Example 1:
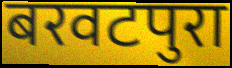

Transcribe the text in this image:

बरवटपुरा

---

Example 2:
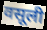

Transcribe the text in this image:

वसूली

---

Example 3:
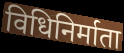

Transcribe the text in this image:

विधिनिर्माता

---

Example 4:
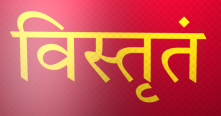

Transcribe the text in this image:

विस्तृतं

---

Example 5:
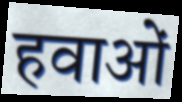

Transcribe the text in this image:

हवाओं